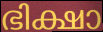
ഭിക്ഷാ